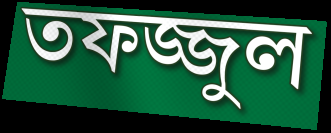
তফজ্জুল